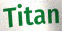
Titan